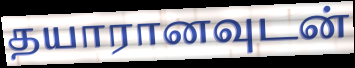
தயாரானவுடன்